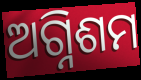
ଅଗ୍ନିଶମ